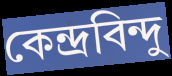
কেন্দ্রবিন্দু